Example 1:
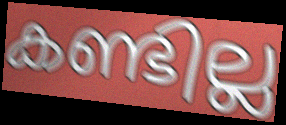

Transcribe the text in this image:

കണ്ടില്ല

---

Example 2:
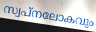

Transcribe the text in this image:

സ്വപ്നലോകവും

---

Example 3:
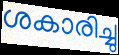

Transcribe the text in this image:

ശകാരിച്ചു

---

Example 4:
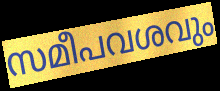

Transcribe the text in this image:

സമീപവശവും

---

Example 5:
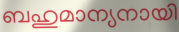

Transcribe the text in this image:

ബഹുമാന്യനായി